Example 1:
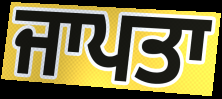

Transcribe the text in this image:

ਜਾਪਤਾ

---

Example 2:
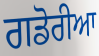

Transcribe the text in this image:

ਗਡੋਰੀਆ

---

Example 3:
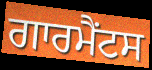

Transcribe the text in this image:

ਗਾਰਮੈਂਟਸ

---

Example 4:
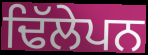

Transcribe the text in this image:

ਢਿੱਲੇਪਨ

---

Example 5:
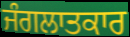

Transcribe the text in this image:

ਜੰਗਲਾਤਕਾਰ